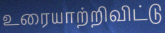
உரையாற்றிவிட்டு